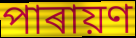
পাৰায়ণ